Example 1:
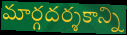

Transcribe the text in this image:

మార్గదర్శకాన్ని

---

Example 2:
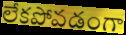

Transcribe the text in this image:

లేకపోవడంగా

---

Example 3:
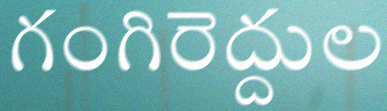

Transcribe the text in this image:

గంగిరెద్దుల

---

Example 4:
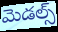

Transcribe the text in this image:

మెడల్స్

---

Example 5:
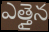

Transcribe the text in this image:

ఎత్తైన